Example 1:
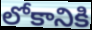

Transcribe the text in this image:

లోకానికి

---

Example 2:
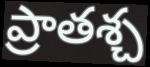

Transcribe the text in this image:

ప్రాతశ్చ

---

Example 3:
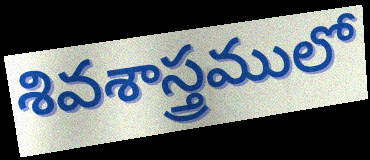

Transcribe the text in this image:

శివశాస్త్రములో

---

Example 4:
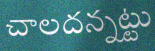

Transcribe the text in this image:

చాలదన్నట్టు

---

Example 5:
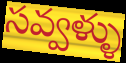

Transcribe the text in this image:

సవ్వళ్ళు